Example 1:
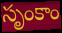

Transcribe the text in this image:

సృంకాం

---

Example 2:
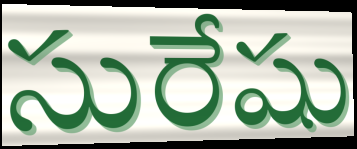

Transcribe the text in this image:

సురేషు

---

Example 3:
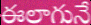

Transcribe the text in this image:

ఈలాగునే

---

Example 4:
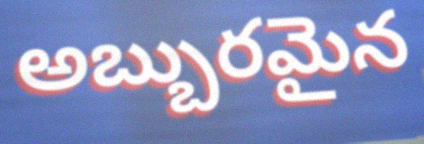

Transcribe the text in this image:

అబ్బురమైన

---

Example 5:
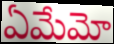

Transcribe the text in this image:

ఏమేమో